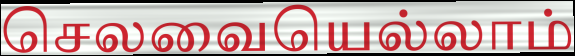
செலவையெல்லாம்